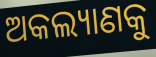
ଅକଲ୍ୟାଣକୁ